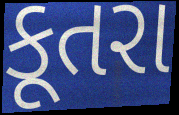
કૂતરા